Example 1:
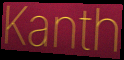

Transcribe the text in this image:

Kanth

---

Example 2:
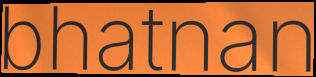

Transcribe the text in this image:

bhatnan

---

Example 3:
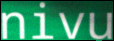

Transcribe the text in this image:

nivu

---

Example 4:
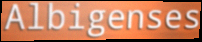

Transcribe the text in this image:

Albigenses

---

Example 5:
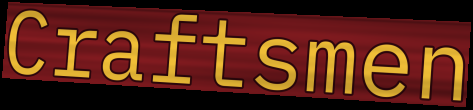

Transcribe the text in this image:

Craftsmen